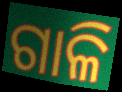
ଗାଳି